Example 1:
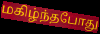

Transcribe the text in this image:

மகிழ்ந்தபோது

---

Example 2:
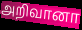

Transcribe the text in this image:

அறிவானா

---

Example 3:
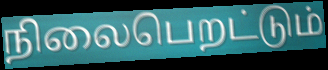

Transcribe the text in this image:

நிலைபெறட்டும்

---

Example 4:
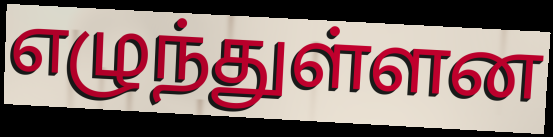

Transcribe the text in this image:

எழுந்துள்ளன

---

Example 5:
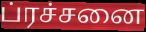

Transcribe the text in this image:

ப்ரச்சனை